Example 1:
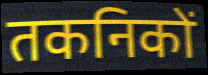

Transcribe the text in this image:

तकनिकों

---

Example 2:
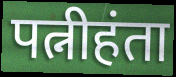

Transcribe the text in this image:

पत्नीहंता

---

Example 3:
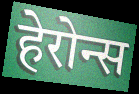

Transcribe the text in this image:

हेरोन्स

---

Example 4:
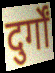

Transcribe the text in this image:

दुर्गों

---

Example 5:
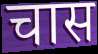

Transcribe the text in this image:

चास